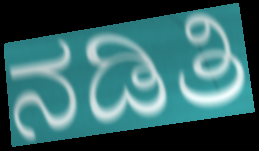
ನಡಿತಿ